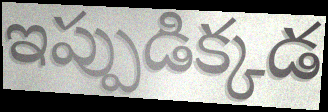
ఇప్పుడిక్కడ